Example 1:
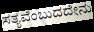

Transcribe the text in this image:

ಸತ್ಯವೆಂಬುದದೇನು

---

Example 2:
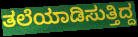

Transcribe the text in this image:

ತಲೆಯಾಡಿಸುತ್ತಿದ್ದ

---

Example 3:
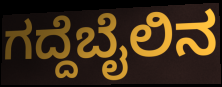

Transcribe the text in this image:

ಗದ್ದೆಬೈಲಿನ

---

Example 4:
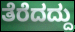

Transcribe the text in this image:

ತೆರೆದದ್ದು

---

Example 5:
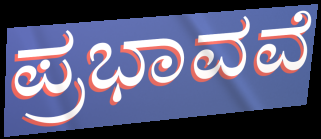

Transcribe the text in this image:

ಪ್ರಭಾವವೆ